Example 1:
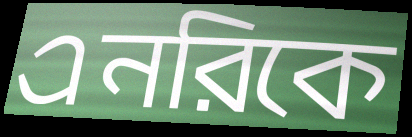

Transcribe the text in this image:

এনরিকে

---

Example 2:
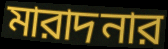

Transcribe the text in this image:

মারাদনার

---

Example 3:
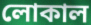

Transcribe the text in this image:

লোকাল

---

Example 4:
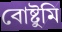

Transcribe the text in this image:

বোষ্টুমি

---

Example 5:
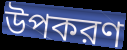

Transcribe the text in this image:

উপকরণ